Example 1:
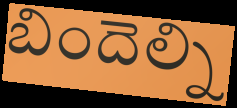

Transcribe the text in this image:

బిందెల్ని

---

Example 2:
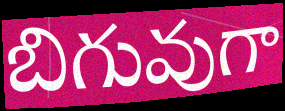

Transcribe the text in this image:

బిగువుగా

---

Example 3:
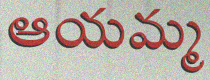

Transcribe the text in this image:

ఆయమ్మ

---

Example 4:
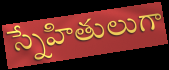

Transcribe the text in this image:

స్నేహితులుగా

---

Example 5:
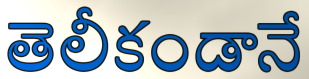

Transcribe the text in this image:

తెలీకండానే